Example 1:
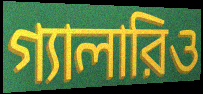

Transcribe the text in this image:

গ্যালারিও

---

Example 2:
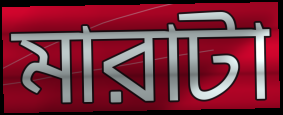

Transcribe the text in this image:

মারাটা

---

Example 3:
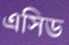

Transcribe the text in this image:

এসিড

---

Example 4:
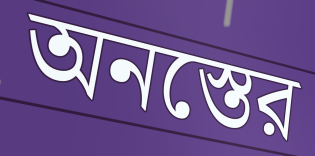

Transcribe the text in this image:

অনস্তের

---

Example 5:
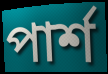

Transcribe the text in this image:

পার্শ